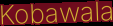
Kobawala